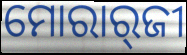
ମୋରାର୍‌ଜୀ